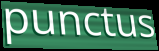
punctus